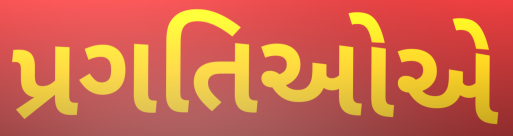
પ્રગતિઓએ